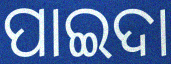
ପାଇଦା